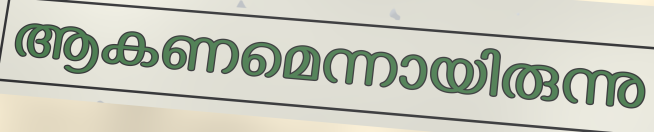
ആകണമെന്നായിരുന്നു